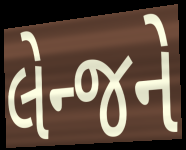
લેન્જને